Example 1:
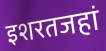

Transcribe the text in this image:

इशरतजहां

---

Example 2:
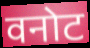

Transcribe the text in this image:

वनोट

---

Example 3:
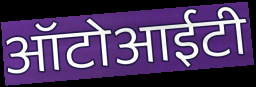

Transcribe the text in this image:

ऑटोआईटी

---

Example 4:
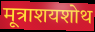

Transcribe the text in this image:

मूत्राशयशोथ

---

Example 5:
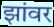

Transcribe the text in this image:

झांवर